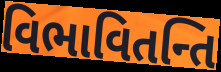
વિભાવિતન્તિ